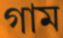
গাম